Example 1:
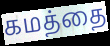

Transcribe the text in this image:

கமத்தை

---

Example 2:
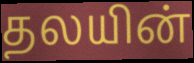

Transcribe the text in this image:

தலயின்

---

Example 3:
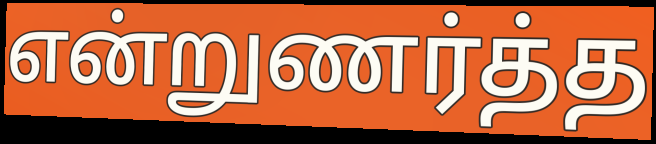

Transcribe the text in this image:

என்றுணர்த்த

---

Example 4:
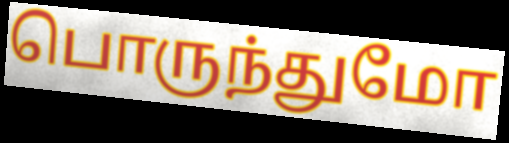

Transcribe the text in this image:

பொருந்துமோ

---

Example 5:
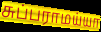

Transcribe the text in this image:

சுப்பராமய்யா